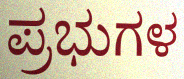
ಪ್ರಭುಗಳ